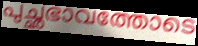
പുച്ഛഭാവത്തോടെ